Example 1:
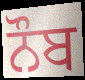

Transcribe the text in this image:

ਨੌਬ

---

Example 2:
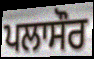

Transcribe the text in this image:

ਪਲਾਸੌਰ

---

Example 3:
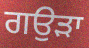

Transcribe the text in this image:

ਗਉੜਾ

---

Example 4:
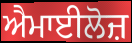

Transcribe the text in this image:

ਐਮਾਈਲੋਜ਼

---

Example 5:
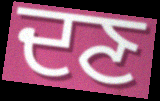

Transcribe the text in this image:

ਦਣ